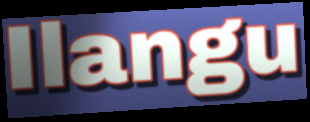
Ilangu